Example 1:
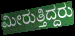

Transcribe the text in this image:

ಮೀರುತ್ತಿದ್ದರು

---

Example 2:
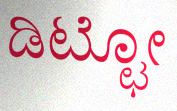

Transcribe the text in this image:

ಡಿಟ್ಟೋ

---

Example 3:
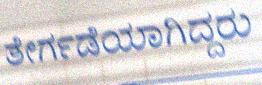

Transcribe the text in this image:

ತೇರ್ಗಡೆಯಾಗಿದ್ದರು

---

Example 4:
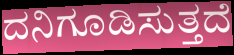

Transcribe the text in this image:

ದನಿಗೂಡಿಸುತ್ತದೆ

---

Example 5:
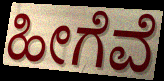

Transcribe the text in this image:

ಹೀಗೆವೆ